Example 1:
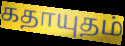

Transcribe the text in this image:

கதாயுதம்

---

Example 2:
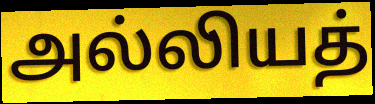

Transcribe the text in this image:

அல்லியத்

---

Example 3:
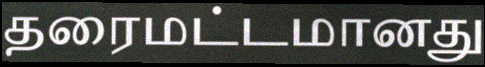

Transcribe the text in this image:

தரைமட்டமானது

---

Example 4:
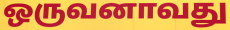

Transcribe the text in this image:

ஒருவனாவது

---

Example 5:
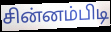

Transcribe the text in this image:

சின்னம்பிடி